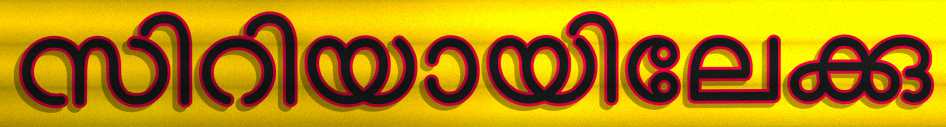
സിറിയായിലേക്കു